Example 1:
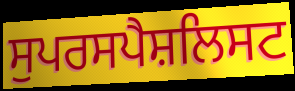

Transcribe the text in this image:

ਸੁਪਰਸਪੈਸ਼ਲਿਸਟ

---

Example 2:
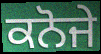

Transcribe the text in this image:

ਕਨੋਜੇ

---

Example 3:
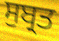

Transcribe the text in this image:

ਸੁਬ੍ਰਤ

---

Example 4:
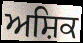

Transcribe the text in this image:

ਅਸ਼ਿਕ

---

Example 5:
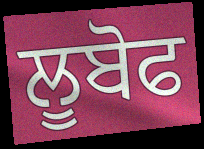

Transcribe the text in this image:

ਲੂਬੋਫ